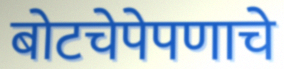
बोटचेपेपणाचे